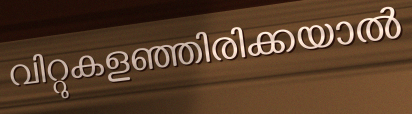
വിറ്റുകളഞ്ഞിരിക്കയാൽ